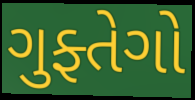
ગુફ્તેગો